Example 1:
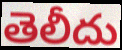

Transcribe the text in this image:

తెలీదు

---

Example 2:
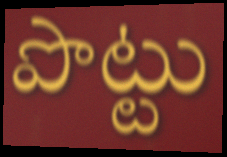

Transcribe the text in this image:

పొట్టు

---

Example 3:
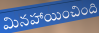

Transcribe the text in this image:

మినహాయించింది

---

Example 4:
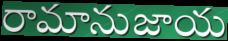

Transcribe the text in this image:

రామానుజాయ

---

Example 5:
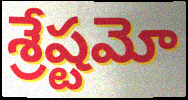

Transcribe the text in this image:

శ్రేష్టమో